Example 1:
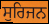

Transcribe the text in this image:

ਸੁਰਿਜਨ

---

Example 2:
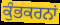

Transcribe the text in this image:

ਕੁੰਭਕਰਨਾਂ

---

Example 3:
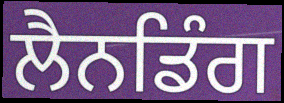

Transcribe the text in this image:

ਲੈਨਡਿੰਗ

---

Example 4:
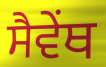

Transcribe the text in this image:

ਸੈਵੇਂਥ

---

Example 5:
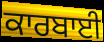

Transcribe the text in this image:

ਕਾਰਬਾਈ